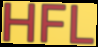
HFL